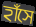
হাঁসে